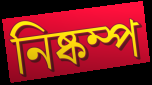
নিষ্কম্প